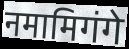
नमामिगंगे